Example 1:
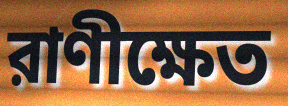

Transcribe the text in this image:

রাণীক্ষেত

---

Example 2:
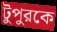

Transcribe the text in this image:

টুপুরকে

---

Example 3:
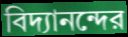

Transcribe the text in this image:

বিদ্যানন্দের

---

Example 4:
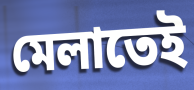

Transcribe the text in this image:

মেলাতেই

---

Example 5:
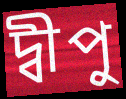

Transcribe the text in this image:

দ্বীপু